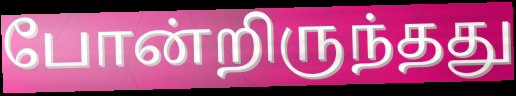
போன்றிருந்தது